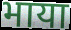
भाया